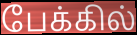
பேக்கில்